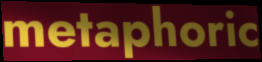
metaphoric